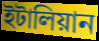
ইটালিয়ান